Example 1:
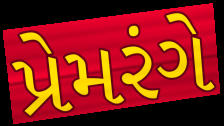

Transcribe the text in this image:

પ્રેમરંગે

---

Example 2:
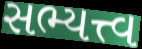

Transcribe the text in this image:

સભ્યત્ત્વ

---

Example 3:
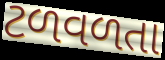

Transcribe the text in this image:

ટળવળતા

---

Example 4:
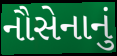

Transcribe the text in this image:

નૌસેનાનું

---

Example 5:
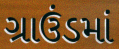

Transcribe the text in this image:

ગ્રાઉંડમાં